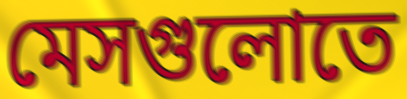
মেসগুলোতে